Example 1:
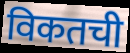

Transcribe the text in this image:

विकतची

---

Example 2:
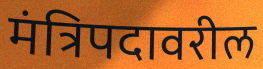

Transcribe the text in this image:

मंत्रिपदावरील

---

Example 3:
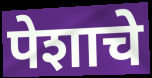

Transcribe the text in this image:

पेशाचे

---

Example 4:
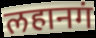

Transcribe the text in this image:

लहानगं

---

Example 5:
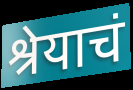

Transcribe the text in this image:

श्रेयाचं